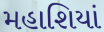
મહાશિયાં